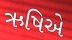
ઋષિએ